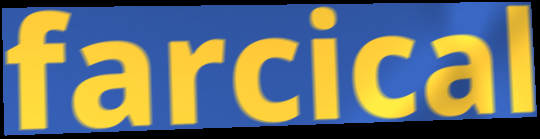
farcical